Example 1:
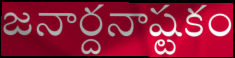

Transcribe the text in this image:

జనార్దనాష్టకం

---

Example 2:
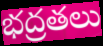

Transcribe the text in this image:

భద్రతలు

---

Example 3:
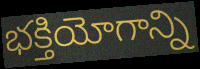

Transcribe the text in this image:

భక్తియోగాన్ని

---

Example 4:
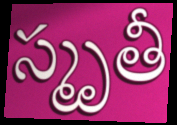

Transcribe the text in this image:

స్మృతీ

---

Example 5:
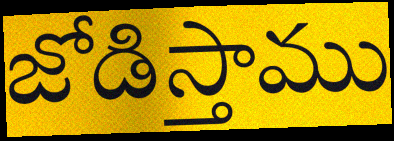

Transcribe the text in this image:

జోడిస్తాము